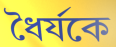
ধৈর্যকে